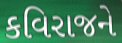
કવિરાજને